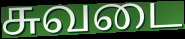
சுவடை